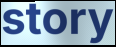
story